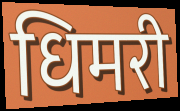
धिमरी